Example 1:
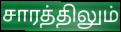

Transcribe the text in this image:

சாரத்திலும்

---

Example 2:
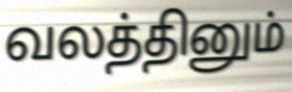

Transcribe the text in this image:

வலத்தினும்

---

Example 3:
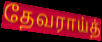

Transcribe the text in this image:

தேவராய்த்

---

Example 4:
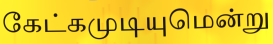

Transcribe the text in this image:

கேட்கமுடியுமென்று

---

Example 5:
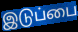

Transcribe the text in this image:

இடுப்பை